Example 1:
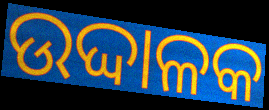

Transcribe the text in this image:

ଉଦ୍ଦାଳକ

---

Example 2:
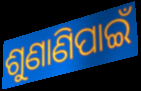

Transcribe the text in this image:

ଶୁଣାଣିପାଇଁ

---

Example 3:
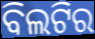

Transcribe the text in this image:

ବିଲଟିର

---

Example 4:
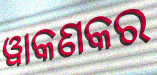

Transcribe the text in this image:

ୱାକଣକର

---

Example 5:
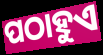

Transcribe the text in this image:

ପଠାହୁଏ